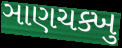
ઞાણચક્ખુ